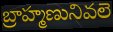
బ్రాహ్మణునివలె